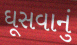
ઘૂસવાનું